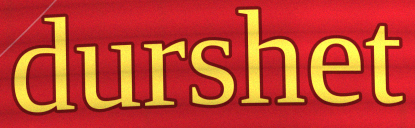
durshet